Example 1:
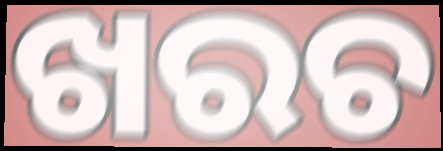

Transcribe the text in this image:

ଖରଚ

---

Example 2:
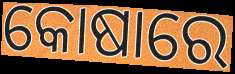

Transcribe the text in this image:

କୋଷାରେ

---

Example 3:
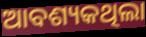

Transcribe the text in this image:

ଆବଶ୍ୟକଥିଲା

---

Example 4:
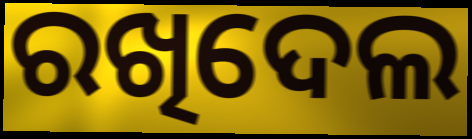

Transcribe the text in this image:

ରଖିଦେଲ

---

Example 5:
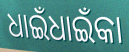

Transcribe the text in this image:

ଧାଇଁଧାଇଁକା